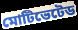
মোটিভেটেড